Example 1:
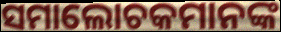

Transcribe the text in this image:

ସମାଲୋଚକମାନଙ୍କ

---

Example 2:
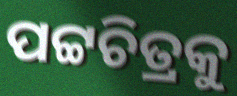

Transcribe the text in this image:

ପଟ୍ଟଚିତ୍ରକୁ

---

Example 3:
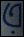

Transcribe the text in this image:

ଏ଼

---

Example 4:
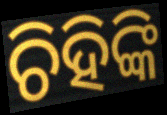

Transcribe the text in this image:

ଚିହିଙ୍କି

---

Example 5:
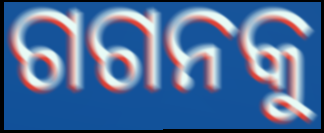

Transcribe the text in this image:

ଗଗନକୁ